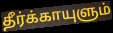
தீர்க்காயுளும்